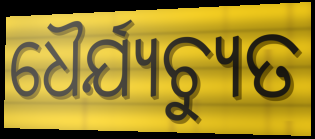
ଧୈର୍ଯ୍ୟଚ୍ୟୁତ